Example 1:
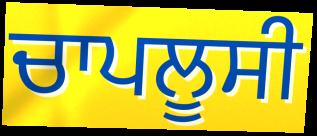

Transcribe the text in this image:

ਚਾਪਲੂਸੀ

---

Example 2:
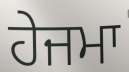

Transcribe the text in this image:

ਹੇਜਮਾ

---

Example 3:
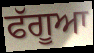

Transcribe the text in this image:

ਫੱਗੂਆ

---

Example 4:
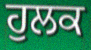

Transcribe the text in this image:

ਹੁਲਕ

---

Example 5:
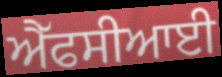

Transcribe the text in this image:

ਐੱਫਸੀਆਈ